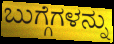
ಬುಗ್ಗೆಗಳನ್ನು